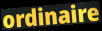
ordinaire